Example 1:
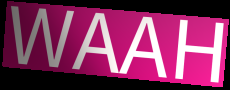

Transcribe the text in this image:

WAAH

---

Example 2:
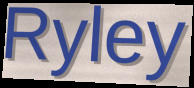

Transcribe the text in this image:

Ryley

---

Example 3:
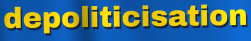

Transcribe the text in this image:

depoliticisation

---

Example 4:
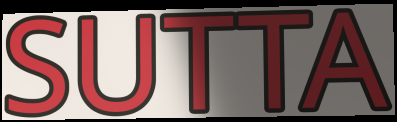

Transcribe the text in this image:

SUTTA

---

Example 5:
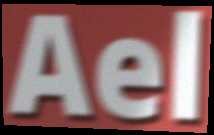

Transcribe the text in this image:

Ael